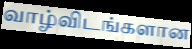
வாழ்விடங்களான